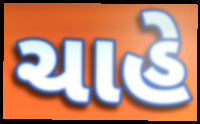
ચાહે